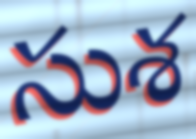
సుశ